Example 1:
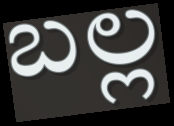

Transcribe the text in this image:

బల్ల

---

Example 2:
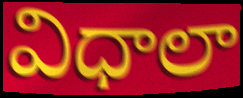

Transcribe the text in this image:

విధాలా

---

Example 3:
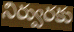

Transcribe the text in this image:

నిర్వురకు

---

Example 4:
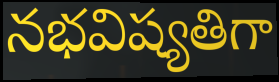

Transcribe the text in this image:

నభవిష్యతిగా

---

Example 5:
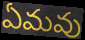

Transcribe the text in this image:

ఏమవు